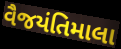
વૈજયંતિમાલા